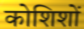
कोशिशों